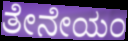
ತೇನೇಯಂ